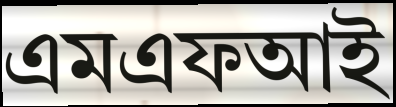
এমএফআই